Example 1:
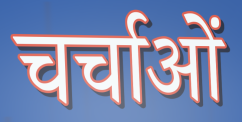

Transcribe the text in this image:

चर्चाओं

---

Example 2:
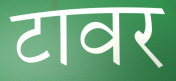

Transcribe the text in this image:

टावर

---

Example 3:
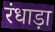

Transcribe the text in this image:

रंधाड़ा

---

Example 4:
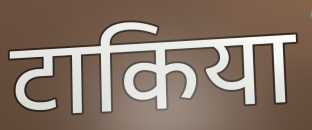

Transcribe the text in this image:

टाकिया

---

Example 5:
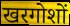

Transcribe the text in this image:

खरगोशों